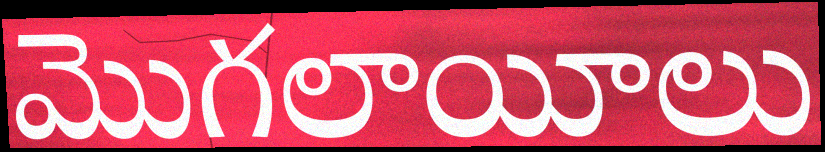
మొగలాయీలు